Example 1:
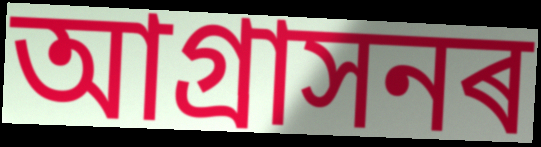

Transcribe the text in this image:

আগ্ৰাসনৰ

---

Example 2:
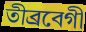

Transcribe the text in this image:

তীব্ৰবেগী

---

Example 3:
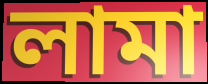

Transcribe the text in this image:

লামা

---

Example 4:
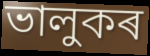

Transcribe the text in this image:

ভালুকৰ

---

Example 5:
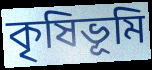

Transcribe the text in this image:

কৃষিভূমি